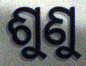
ଶୁଣୁ